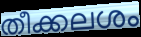
തീക്കലശം